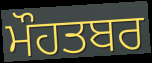
ਮੌਹਤਬਰ